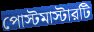
পোস্টমাস্টারটি